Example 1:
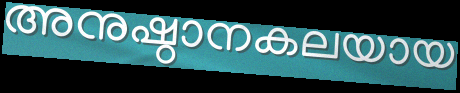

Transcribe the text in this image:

അനുഷ്ഠാനകലയായ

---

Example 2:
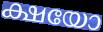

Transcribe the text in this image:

ക്ഷയോ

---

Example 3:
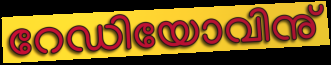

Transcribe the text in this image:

റേഡിയോവിനു്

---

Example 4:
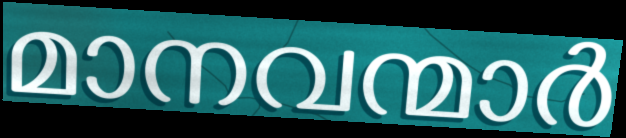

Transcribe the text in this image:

മാനവന്മാർ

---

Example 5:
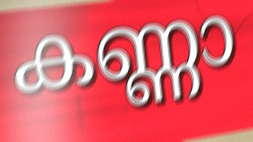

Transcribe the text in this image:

കണ്ണാ